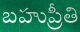
బహుప్రీతి